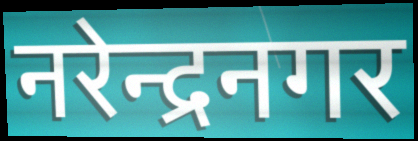
नरेन्द्रनगर